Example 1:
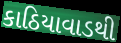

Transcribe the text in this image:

કાઠિયાવાડથી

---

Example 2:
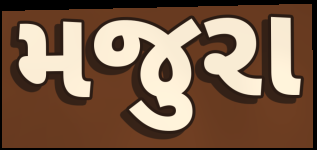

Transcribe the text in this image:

મજુરા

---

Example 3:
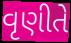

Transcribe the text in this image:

વૃણીતે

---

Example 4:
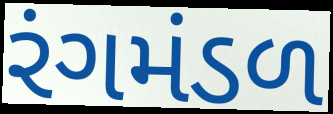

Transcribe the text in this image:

રંગમંડળ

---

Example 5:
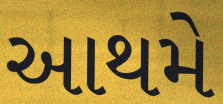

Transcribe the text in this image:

આથમે